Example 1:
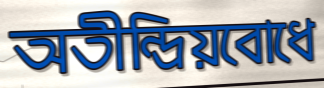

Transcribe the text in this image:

অতীন্দ্রিয়বোধে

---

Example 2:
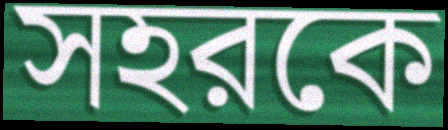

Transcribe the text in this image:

সহরকে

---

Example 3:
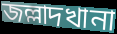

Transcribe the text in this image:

জল্লাদখানা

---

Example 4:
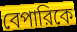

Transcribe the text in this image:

বেপারিকে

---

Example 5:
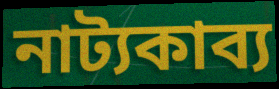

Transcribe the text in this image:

নাট্যকাব্য